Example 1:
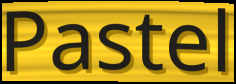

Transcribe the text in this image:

Pastel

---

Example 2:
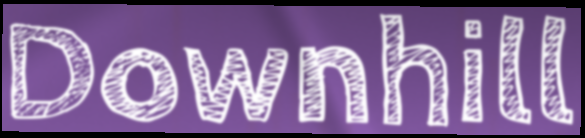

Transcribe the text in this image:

Downhill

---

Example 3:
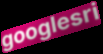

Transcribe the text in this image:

googlesri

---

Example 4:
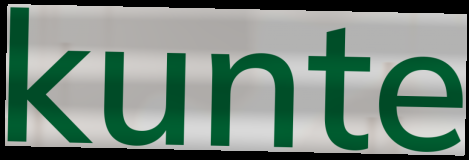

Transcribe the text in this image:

kunte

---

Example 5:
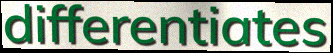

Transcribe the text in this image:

differentiates